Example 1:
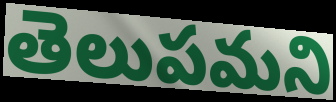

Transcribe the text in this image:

తెలుపమని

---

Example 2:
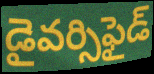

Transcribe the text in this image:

డైవర్సిఫైడ్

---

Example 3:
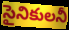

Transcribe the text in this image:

సైనికులనీ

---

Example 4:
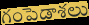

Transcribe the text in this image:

గంపెడాశలు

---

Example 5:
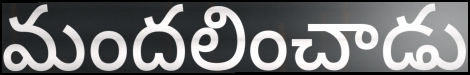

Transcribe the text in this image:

మందలించాడు